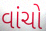
વાંચો